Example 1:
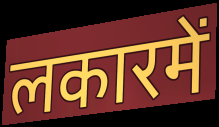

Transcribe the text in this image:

लकारमें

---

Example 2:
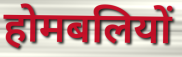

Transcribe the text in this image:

होमबलियों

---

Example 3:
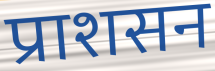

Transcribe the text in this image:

प्राशसन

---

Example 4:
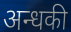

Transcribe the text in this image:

अन्धकी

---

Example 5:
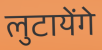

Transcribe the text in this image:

लुटायेंगे